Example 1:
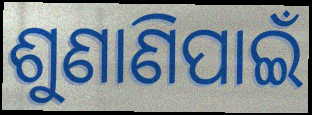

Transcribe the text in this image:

ଶୁଣାଣିପାଇଁ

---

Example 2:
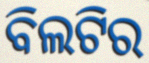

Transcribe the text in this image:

ବିଲଟିର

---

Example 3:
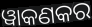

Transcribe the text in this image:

ୱାକଣକର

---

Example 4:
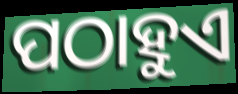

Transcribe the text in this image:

ପଠାହୁଏ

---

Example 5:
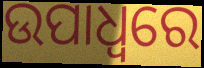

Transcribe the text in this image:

ଉପାଧ୍ଵରେ